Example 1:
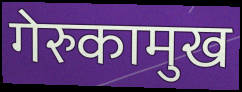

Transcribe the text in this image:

गेरुकामुख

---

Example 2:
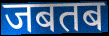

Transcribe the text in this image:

जबतब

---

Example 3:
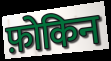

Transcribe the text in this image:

फ़ोकिन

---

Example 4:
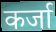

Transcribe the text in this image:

कर्जा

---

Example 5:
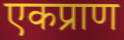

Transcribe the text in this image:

एकप्राण